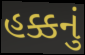
હક્કનું